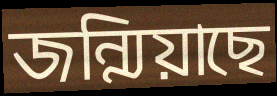
জন্মিয়াছে